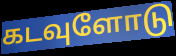
கடவுளோடு